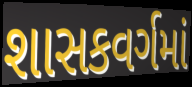
શાસકવર્ગમાં